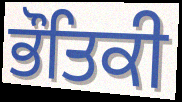
ਭੌਤਿਕੀ